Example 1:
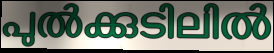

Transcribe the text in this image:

പുൽക്കുടിലിൽ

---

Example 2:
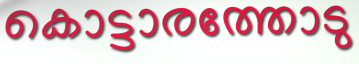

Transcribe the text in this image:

കൊട്ടാരത്തോടു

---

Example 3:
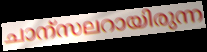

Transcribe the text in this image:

ചാന്സലറായിരുന്ന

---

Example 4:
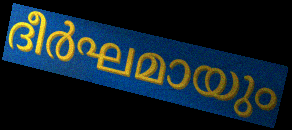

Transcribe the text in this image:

ദീർഘമായും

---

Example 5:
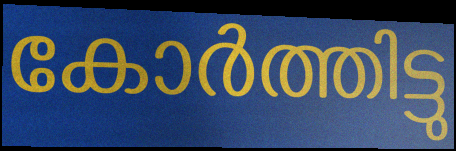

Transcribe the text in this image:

കോർത്തിട്ടു